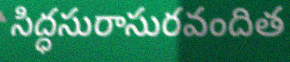
సిద్ధసురాసురవందిత